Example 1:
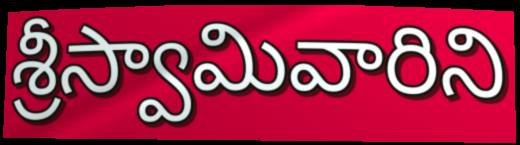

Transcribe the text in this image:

శ్రీస్వామివారిని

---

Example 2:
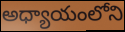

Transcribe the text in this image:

అధ్యాయంలోని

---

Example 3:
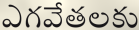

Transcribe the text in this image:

ఎగవేతలకు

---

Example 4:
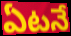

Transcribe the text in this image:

ఏటనే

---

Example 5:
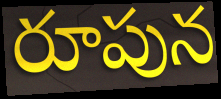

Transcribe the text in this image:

రూపున